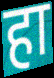
हा